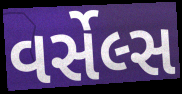
વર્સેલ્સ